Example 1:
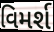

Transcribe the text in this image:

વિમર્શ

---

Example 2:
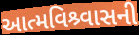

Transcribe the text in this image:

આત્મવિશ્ર્વાસની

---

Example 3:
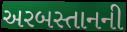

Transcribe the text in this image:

અરબસ્તાનની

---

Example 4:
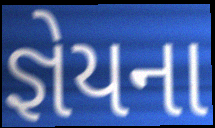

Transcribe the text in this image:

જ્ઞેયના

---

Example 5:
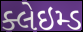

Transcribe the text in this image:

ક્લેઇમ્ડ